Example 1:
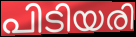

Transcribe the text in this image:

പിടിയരി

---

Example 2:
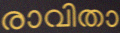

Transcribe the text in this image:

രാവിതാ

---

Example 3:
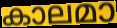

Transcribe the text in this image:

കാലമാ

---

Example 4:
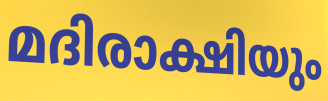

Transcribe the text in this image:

മദിരാക്ഷിയും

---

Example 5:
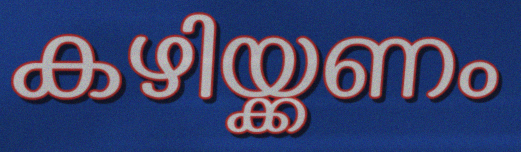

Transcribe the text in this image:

കഴിയ്ക്കണം